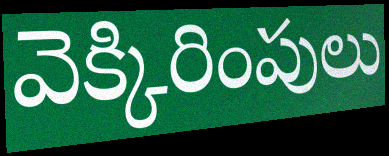
వెక్కిరింపులు